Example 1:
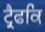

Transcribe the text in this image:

ਟ੍ਰੈਫਕਿ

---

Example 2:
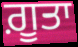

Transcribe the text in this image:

ਗ਼ੂਤਾ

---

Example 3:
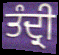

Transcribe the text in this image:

ਤੰਦ੍ਰੀ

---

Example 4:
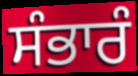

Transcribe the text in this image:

ਸੰਭਾਰੰ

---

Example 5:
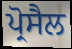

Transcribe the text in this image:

ਪ੍ਰੋਸੈਲ